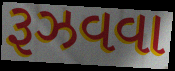
રૂઝવવા